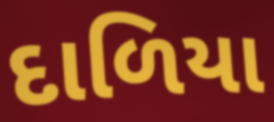
દાળિયા